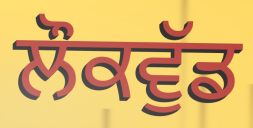
ਲੌਕਵੁੱਡ